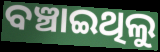
ବଞ୍ଚାଇଥିଲୁ